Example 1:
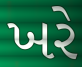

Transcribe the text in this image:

ખરે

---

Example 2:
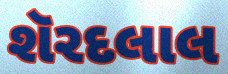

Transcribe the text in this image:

શૅરદલાલ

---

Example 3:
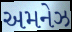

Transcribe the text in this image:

અમનેઝ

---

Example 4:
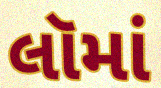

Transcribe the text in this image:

લૉમાં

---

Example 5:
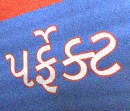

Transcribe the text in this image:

પર્ફેક્ટ